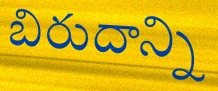
బిరుదాన్ని